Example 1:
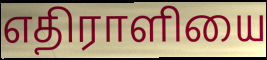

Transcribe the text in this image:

எதிராளியை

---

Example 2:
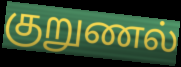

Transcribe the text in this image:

குறுணல்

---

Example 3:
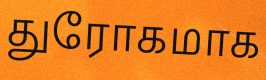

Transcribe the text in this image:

துரோகமாக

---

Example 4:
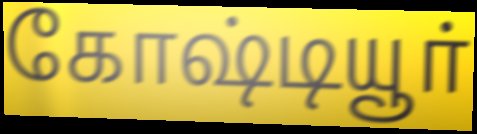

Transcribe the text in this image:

கோஷ்டியூர்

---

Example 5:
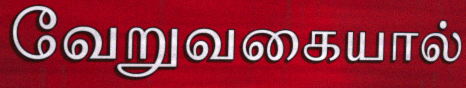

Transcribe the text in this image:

வேறுவகையால்